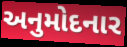
અનુમોદનાર